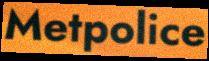
Metpolice